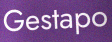
Gestapo